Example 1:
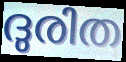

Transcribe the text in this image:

ദുരിത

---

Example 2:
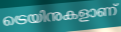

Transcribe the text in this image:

ട്രെയിനുകളാണ്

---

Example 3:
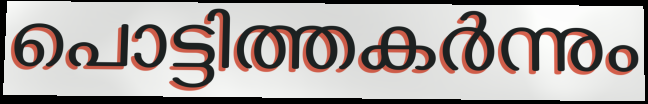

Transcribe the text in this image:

പൊട്ടിത്തകർന്നും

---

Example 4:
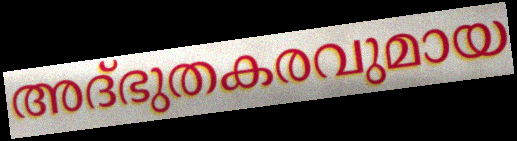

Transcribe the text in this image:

അദ്ഭുതകരവുമായ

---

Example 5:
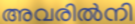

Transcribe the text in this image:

അവരിൽനി